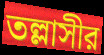
তল্লাসীর